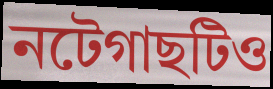
নটেগাছটিও